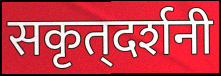
सकृत्‌दर्शनी